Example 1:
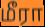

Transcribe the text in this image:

மீரா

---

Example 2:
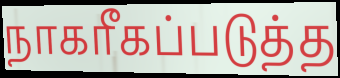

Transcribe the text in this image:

நாகரீகப்படுத்த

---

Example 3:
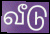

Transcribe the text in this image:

வீடு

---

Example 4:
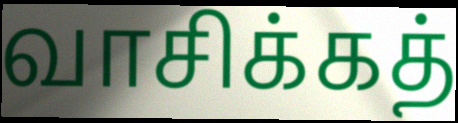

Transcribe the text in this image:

வாசிக்கத்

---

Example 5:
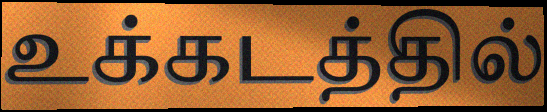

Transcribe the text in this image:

உக்கடத்தில்